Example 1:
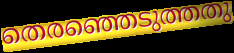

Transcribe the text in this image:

തെരഞ്ഞെടുത്തതു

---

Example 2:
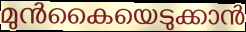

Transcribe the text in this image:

മുൻകൈയെടുക്കാൻ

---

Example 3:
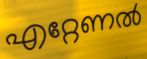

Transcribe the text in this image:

എറ്റേണൽ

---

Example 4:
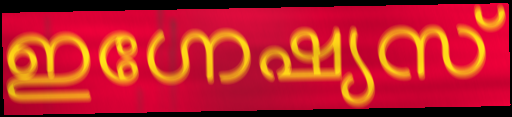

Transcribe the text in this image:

ഇഗ്നേഷ്യസ്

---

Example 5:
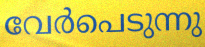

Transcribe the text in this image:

വേർപെടുന്നു